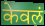
केवलं